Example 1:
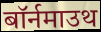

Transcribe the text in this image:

बॉर्नमाउथ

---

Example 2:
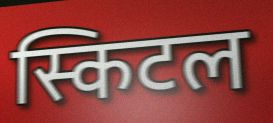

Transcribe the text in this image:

स्किटल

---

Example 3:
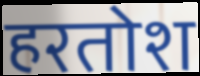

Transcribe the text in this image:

हरतोश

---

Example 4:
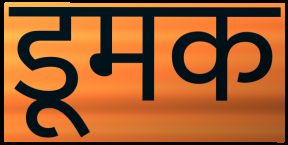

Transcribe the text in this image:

डूमक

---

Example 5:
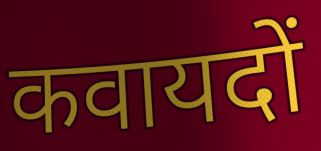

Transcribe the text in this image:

कवायदों